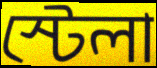
স্টেলা